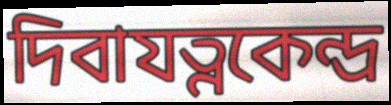
দিবাযত্নকেন্দ্র